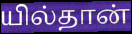
யில்தான்